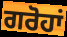
ਗਰੋਹਾਂ